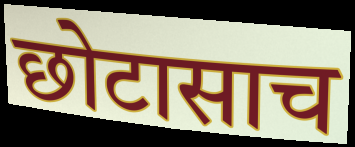
छोटासाच